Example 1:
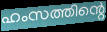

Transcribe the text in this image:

ഹംസത്തിന്റെ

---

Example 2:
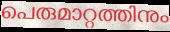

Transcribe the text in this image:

പെരുമാറ്റത്തിനും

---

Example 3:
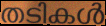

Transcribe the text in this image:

തടികൾ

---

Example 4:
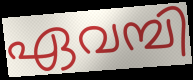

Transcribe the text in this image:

ഏവമ്പി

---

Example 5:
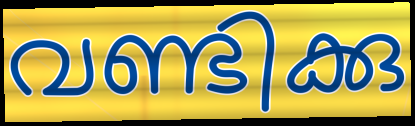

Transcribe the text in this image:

വണ്ടിക്കു